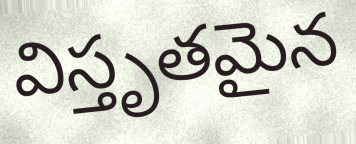
విస్తృతమైన